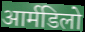
आर्मडिलो